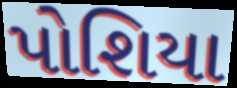
પોશિયા